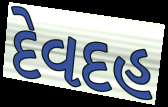
દેવદહ